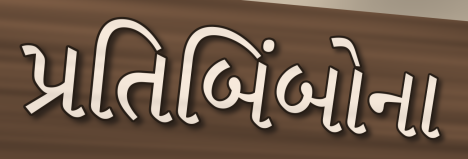
પ્રતિબિંબોના